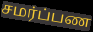
சமர்ப்பண